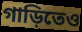
গাড়িতেও